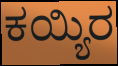
ಕಯ್ಯಿರ